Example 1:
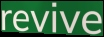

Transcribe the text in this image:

revive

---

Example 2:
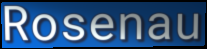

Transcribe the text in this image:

Rosenau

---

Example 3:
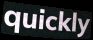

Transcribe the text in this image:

quickly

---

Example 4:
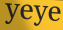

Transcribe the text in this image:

yeye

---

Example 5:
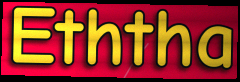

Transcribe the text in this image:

Eththa